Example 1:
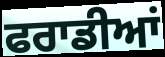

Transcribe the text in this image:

ਫਰਾਡੀਆਂ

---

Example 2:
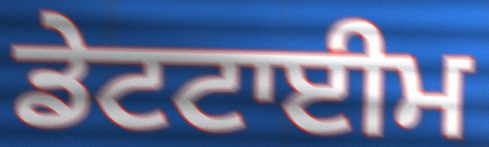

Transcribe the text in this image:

ਡੇਟਟਾਈਮ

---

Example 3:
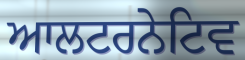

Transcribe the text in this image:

ਆਲਟਰਨੇਟਿਵ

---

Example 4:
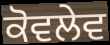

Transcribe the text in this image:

ਕੋਵਲੇਵ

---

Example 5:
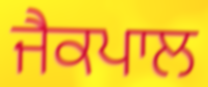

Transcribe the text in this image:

ਜੈਕਪਾਲ